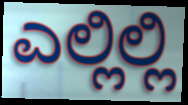
ಎಲ್ಲಿಲ್ಲಿ